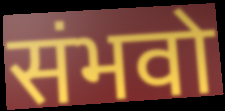
संभवो